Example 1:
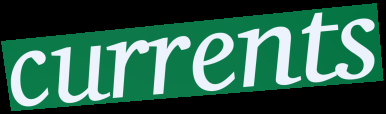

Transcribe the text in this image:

currents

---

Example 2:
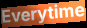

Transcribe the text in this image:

Everytime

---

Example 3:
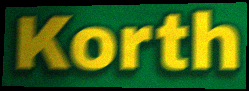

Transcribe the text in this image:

Korth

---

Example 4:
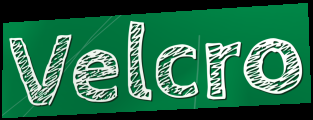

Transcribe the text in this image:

Velcro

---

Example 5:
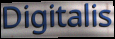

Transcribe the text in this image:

Digitalis